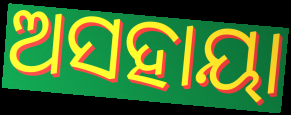
ଅସହାୟା